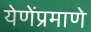
येणेंप्रमाणे